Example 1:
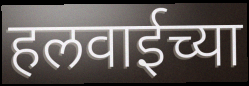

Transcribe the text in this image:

हलवाईच्या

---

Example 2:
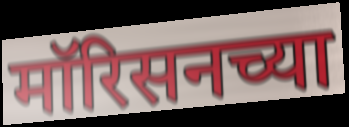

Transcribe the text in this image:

मॉरिसनच्या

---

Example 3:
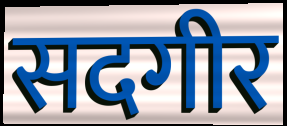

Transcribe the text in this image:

सदगीर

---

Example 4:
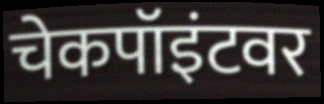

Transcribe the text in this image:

चेकपॉइंटवर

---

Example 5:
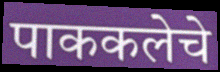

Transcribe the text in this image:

पाककलेचे